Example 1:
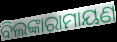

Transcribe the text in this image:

ବିଲଙ୍କାରାମାୟଣ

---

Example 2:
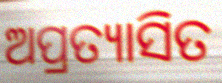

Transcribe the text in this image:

ଅପ୍ରତ୍ୟାସିତ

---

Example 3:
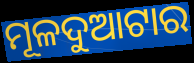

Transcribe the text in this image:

ମୂଳଦୁଆଟାର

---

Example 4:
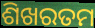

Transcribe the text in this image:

ଶିଖରତମ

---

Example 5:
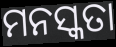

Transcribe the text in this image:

ମନସ୍କତା